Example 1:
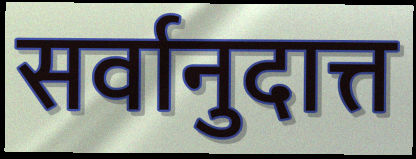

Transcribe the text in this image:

सर्वानुदात्त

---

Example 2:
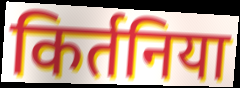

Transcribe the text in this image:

किर्तनिया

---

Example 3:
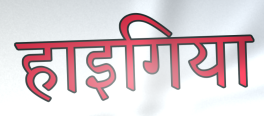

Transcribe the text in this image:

हाइगिया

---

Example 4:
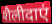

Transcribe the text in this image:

शैलीदाएं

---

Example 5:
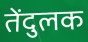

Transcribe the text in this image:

तेंदुलक